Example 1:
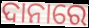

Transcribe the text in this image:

ଦାନାରେ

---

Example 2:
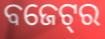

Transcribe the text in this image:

ବଜେଟ୍‌ର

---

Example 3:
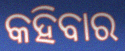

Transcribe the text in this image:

କହିବାର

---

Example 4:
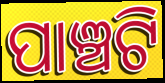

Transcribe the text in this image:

ପାଞ୍ଚଟି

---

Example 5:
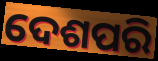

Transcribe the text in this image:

ଦେଶପରି